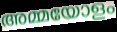
അമ്മയോളം